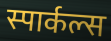
स्पार्कल्स